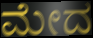
ಮೇದ